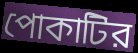
পোকাটির